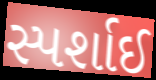
સ્પર્શાઈ